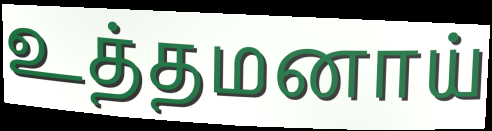
உத்தமனாய்